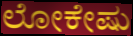
ಲೋಕೇಷು